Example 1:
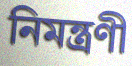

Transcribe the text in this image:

নিমন্ত্ৰণী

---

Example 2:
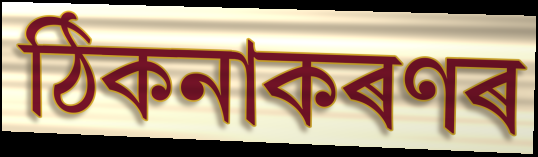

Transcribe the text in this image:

ঠিকনাকৰণৰ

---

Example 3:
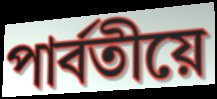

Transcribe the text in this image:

পাৰ্বতীয়ে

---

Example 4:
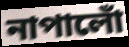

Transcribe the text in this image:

নাপালোঁ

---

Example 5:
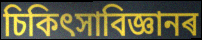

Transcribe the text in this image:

চিকিৎসাবিজ্ঞানৰ